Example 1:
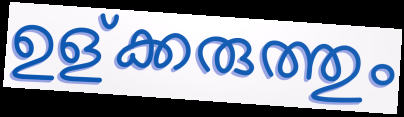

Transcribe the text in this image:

ഉള്ക്കരുത്തും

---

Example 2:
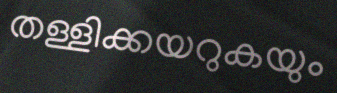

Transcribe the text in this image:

തള്ളിക്കയറുകയും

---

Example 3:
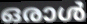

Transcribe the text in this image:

ഒരാൾ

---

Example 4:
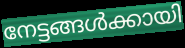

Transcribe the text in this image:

നേട്ടങ്ങൾക്കായി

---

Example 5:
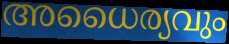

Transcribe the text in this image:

അധൈര്യവും